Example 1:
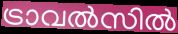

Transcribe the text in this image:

ട്രാവൽസിൽ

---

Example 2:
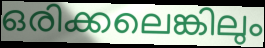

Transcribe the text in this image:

ഒരിക്കലെങ്കിലും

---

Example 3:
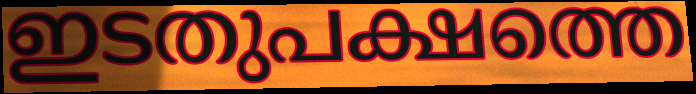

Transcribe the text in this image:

ഇടതുപക്ഷത്തെ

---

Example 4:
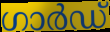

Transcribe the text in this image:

ഗാർഡ്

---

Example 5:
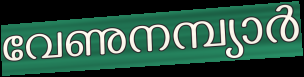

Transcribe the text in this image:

വേണുനമ്പ്യാർ